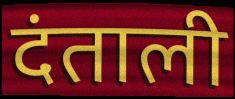
दंताली